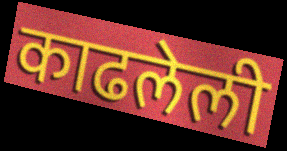
काढलेली